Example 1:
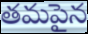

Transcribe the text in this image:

తమపైన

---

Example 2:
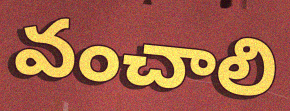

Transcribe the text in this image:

వంచాలి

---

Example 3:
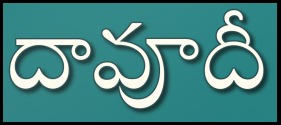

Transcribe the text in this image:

దావూదీ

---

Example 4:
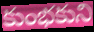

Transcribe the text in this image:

కుంభకుని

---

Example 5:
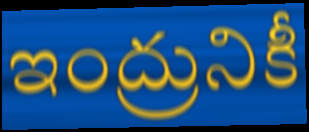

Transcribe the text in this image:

ఇంద్రునికీ